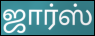
ஜார்ஸ்